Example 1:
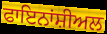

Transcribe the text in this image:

ਫਾਇਨਾਂਸ਼ੀਅਲ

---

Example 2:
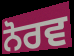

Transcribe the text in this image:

ਨੋਰਵ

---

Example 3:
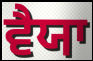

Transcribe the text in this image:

ਵੈਯਾ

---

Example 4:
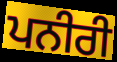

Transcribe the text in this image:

ਪਨੀਰੀ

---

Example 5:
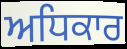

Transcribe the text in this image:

ਅਧਿਕਾਰ